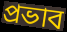
প্রভাব